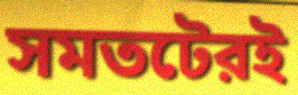
সমতটেরই